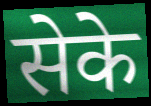
सेके